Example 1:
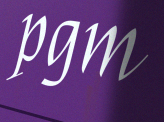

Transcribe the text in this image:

pgm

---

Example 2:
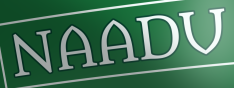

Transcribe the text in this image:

NAADU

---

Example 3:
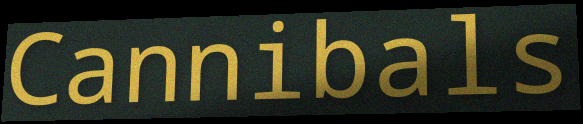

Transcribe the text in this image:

Cannibals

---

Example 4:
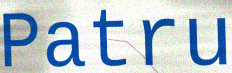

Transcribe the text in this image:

Patru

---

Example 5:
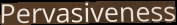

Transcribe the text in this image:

Pervasiveness